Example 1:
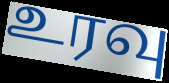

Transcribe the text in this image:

உரவு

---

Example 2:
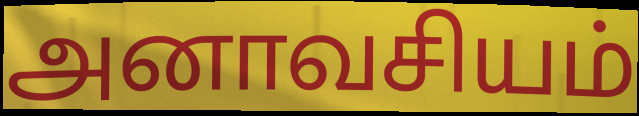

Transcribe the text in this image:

அனாவசியம்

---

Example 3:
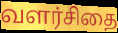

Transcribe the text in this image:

வளர்சிதை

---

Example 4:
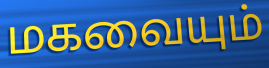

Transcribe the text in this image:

மகவையும்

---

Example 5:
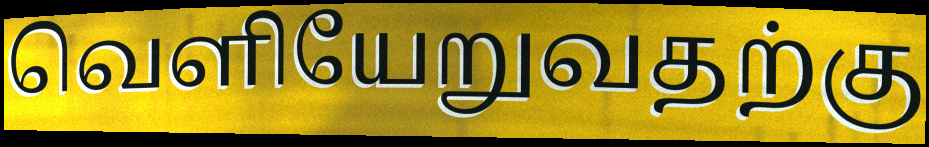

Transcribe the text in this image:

வெளியேறுவதற்கு